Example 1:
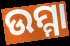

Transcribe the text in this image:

ଉମ୍ମା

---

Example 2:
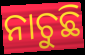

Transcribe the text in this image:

ନାଚୁଛି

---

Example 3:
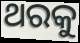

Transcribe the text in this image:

ଥରକୁ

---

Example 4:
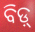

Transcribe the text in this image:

ବିଡ଼୍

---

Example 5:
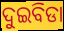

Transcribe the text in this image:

ଦୁଇବିଡା